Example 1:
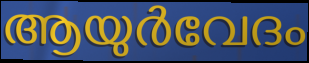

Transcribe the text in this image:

ആയുർവേദം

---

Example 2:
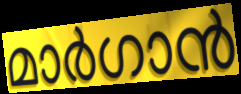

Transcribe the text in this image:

മാർഗാൻ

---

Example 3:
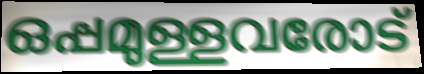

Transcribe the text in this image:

ഒപ്പമുള്ളവരോട്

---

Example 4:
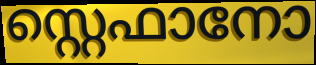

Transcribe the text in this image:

സ്റ്റെഫാനോ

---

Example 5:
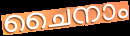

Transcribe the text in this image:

ചൈനാം